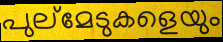
പുല്മേടുകളെയും